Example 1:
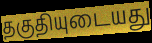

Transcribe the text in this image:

தகுதியுடையது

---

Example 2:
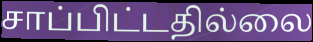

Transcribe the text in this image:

சாப்பிட்டதில்லை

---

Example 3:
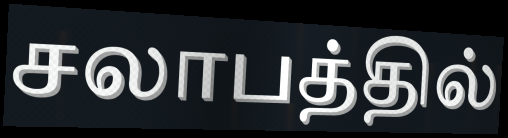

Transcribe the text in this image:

சலாபத்தில்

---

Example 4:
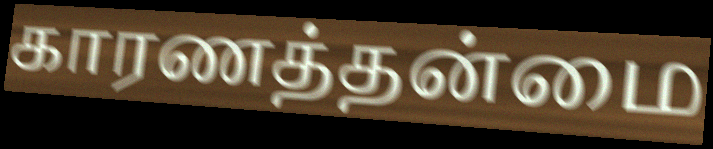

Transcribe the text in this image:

காரணத்தன்மை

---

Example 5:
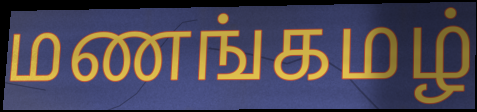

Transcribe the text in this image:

மணங்கமழ்